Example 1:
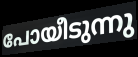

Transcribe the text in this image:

പോയീടുന്നു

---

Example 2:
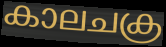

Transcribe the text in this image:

കാലചക്ര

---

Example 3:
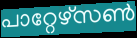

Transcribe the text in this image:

പാറ്റേഴ്സൺ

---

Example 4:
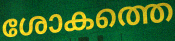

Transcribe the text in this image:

ശോകത്തെ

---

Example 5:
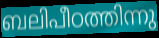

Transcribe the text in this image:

ബലിപീഠത്തിന്നു